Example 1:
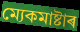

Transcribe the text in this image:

ম্যেকমাষ্টাৰ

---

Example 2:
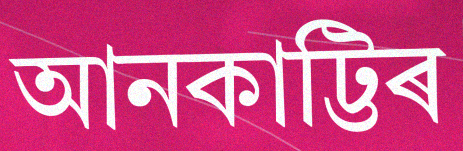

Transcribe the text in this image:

আনকাট্টিৰ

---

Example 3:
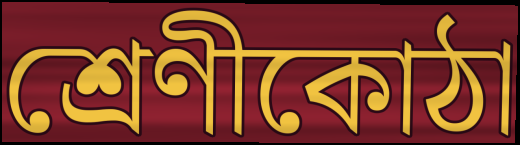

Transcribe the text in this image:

শ্ৰেণীকোঠা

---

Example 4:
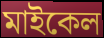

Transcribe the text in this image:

মাইকেল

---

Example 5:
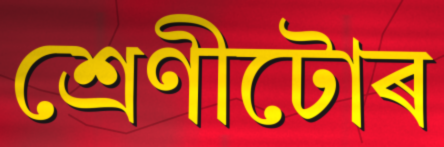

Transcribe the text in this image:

শ্ৰেণীটোৰ